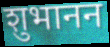
शुभानन